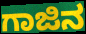
ಗಾಜಿನ